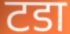
टडा